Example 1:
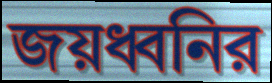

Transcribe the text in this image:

জয়ধ্বনির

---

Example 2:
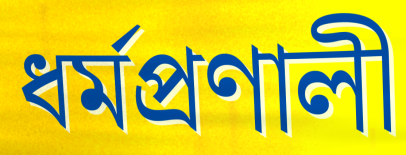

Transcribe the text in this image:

ধর্মপ্রণালী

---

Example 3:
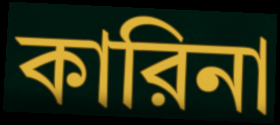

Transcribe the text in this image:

কারিনা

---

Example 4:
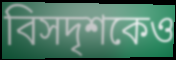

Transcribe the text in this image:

বিসদৃশকেও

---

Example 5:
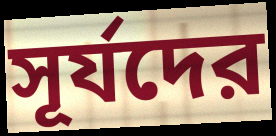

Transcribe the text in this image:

সূর্যদের